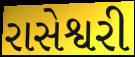
રાસેશ્વરી